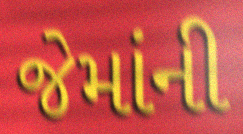
જેમાંની